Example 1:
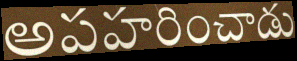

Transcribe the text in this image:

అపహరించాడు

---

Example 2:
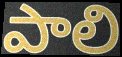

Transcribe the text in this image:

పాలి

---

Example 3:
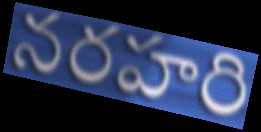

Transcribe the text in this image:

నరహరి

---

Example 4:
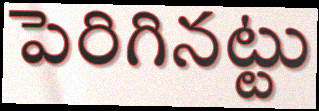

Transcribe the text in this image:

పెరిగినట్టు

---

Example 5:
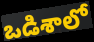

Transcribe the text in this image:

ఒడిశాలో